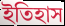
ইতিহাস